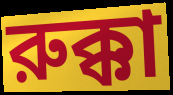
রুক্কা